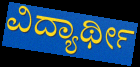
ವಿದ್ಯಾರ್ಥೀ